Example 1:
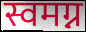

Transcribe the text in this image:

स्वमग्न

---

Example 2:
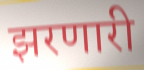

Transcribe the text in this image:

झरणारी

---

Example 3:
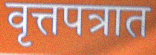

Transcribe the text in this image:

वृत्तपत्रात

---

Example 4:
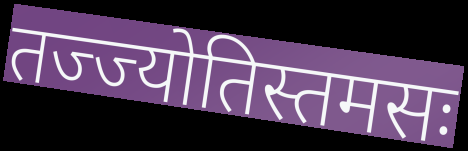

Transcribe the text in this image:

तज्ज्योतिस्तमसः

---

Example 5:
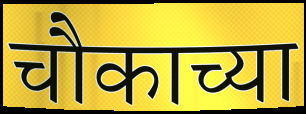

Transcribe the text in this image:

चौकाच्या